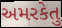
અમરકેતુ